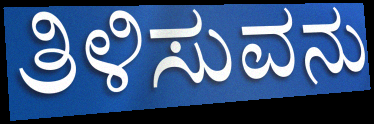
ತಿಳಿಸುವನು